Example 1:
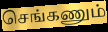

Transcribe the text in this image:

செங்கணும்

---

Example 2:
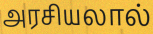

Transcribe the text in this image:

அரசியலால்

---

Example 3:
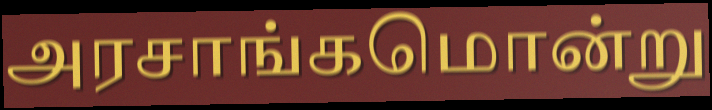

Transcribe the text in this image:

அரசாங்கமொன்று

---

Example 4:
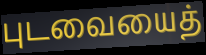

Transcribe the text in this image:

புடவையைத்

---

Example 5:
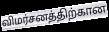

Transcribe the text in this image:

விமர்சனத்திற்கான